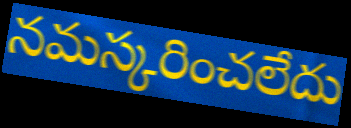
నమస్కరించలేదు